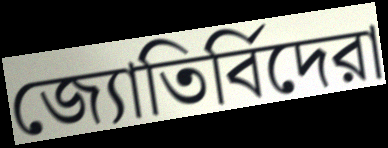
জ্যোতির্বিদেরা